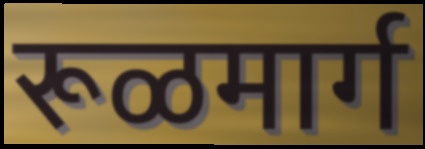
रूळमार्ग